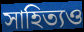
সাহিত্যও